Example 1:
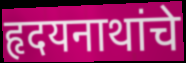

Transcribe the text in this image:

हृदयनाथांचे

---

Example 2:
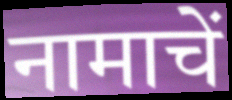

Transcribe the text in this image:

नामाचें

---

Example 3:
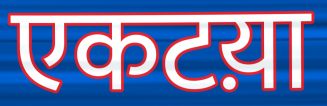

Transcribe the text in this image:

एकटय़ा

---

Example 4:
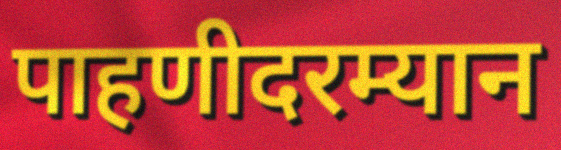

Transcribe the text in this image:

पाहणीदरम्यान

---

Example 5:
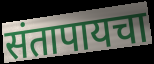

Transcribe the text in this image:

संतापायचा